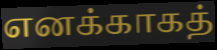
எனக்காகத்